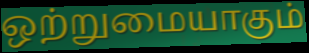
ஒற்றுமையாகும்